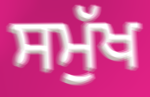
ਸਮੁੱਖ